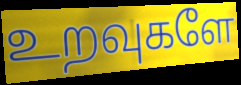
உறவுகளே